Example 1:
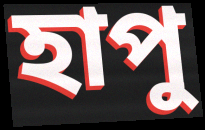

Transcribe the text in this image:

হাপু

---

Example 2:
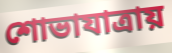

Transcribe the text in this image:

শোভাযাত্রায়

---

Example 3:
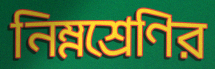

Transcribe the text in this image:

নিম্নশ্রেণির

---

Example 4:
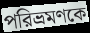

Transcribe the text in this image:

পরিভ্রমণকে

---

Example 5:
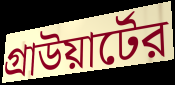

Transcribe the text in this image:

গ্রাউয়ার্টের